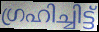
ഗ്രഹിച്ചിട്ട്